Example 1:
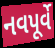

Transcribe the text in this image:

નવપૂર્વે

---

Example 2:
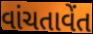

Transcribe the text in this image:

વાંચતાવેંત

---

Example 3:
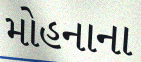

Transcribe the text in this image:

મોહનાના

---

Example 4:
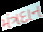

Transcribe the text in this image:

મંત્રદાન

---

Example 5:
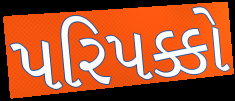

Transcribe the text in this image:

પરિપક્કો